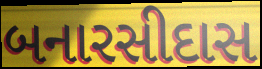
બનારસીદાસ